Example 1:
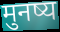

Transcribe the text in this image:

मुनष्य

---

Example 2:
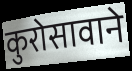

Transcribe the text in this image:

कुरोसावाने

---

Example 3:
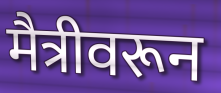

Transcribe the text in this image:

मैत्रीवरून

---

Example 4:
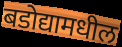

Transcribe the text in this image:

बडोद्यामधील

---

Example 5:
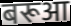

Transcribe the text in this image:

बरूआ